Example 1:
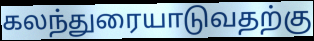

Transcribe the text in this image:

கலந்துரையாடுவதற்கு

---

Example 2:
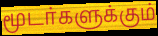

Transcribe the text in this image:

மூடர்களுக்கும்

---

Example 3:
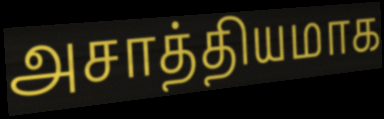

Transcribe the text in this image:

அசாத்தியமாக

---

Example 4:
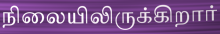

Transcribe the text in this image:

நிலையிலிருக்கிறார்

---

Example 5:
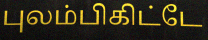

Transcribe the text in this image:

புலம்பிகிட்டே